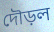
দৌড়ল